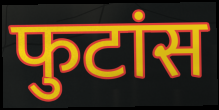
फुटांस